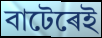
বাটেৰেই